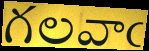
గలవాఁ